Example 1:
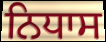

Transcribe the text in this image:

ਨਿਧਾਸ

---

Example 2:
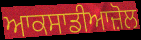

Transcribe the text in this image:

ਆਕਸਾਡੀਆਜ਼ੋਲ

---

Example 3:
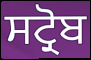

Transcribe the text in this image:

ਸਟ੍ਰੋਬ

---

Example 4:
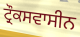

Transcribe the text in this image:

ਟ੍ਰੌਕਸਵਾਸੀਨ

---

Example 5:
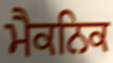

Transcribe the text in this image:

ਮੈਕਨਿਕ